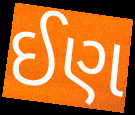
ઈણ